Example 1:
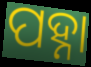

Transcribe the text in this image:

ପହ୍ନା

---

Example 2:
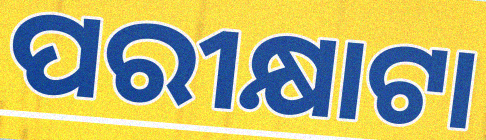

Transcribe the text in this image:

ପରୀକ୍ଷାଟା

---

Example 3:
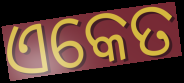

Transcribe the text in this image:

ଏକେତ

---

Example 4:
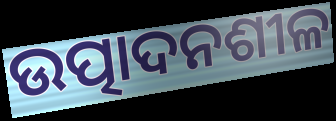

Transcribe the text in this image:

ଉତ୍ପାଦନଶୀଳ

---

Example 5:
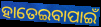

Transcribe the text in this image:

ହାତେଇବାପାଇଁ